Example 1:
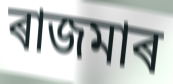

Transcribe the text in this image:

ৰাজমাৰ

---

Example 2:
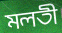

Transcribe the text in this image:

মলতী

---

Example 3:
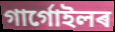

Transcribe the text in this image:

গাৰ্গোইলৰ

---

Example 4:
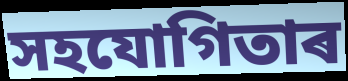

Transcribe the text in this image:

সহযোগিতাৰ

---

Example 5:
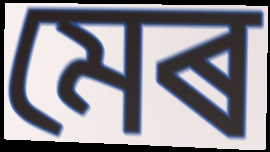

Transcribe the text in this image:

মেৰ